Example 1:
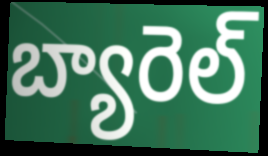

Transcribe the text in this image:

బ్యారెల్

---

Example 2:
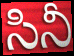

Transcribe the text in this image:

సినీ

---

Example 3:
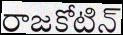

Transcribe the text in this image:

రాజకోటిన్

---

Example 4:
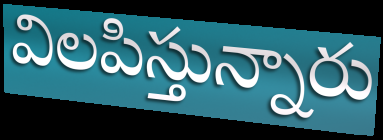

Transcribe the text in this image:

విలపిస్తున్నారు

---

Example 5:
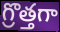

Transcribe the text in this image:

గ్రొత్తగా